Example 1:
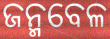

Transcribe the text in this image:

ଜନ୍ମବେଳ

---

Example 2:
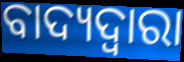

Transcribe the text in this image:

ବାଦ୍ୟଦ୍ୱାରା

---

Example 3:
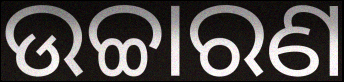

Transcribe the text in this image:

ଉଚ୍ଚାରଣ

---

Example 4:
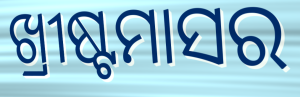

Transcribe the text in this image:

ଖ୍ରୀଷ୍ଟମାସର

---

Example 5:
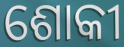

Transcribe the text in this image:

ଶୋକୀ